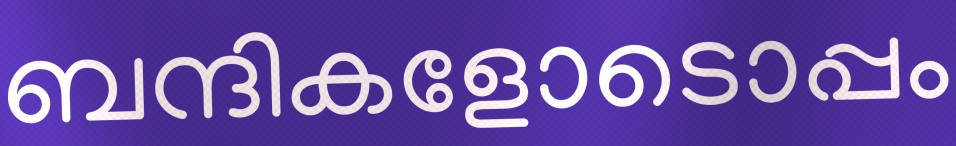
ബന്ദികളോടൊപ്പം